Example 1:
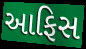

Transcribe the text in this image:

આફિસ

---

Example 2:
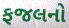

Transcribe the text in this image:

ફજલનો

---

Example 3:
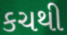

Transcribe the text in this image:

કચથી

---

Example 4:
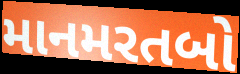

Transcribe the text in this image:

માનમરતબો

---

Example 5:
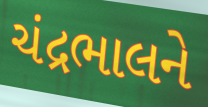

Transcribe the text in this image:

ચંદ્રભાલને